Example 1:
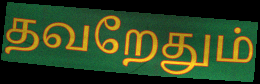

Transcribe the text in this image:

தவறேதும்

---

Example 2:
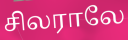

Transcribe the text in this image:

சிலராலே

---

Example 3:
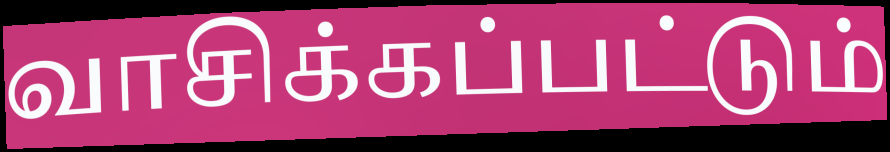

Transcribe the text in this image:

வாசிக்கப்பட்டும்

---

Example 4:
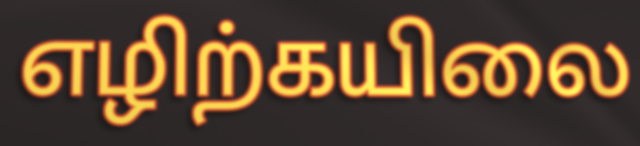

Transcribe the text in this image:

எழிற்கயிலை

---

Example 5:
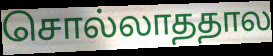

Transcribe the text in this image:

சொல்லாததால